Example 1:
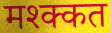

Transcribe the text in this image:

मश्क्कत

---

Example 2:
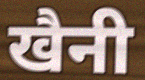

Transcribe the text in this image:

खैनी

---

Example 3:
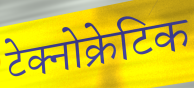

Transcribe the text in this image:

टेक्नोक्रेटिक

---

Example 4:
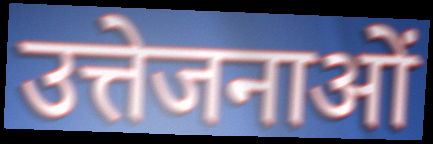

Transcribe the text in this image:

उत्तेजनाओं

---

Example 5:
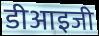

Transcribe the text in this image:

डीआइजी